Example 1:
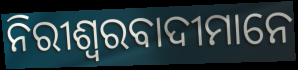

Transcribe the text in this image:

ନିରୀଶ୍ବରବାଦୀମାନେ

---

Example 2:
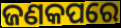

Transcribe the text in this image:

ଜଣକପରେ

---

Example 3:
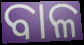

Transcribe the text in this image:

ବାଳ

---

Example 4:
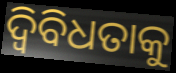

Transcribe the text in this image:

ଦ୍ୱିବିଧତାକୁ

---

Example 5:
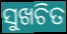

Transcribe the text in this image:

ସୁଖଚିତ